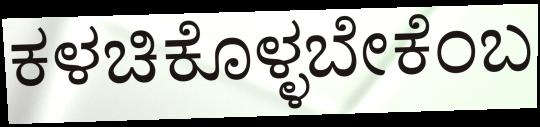
ಕಳಚಿಕೊಳ್ಳಬೇಕೆಂಬ